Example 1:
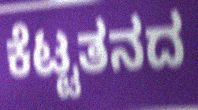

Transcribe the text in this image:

ಕೆಟ್ಟತನದ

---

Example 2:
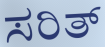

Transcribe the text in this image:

ಸರಿತ್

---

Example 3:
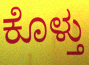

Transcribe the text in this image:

ಕೊಳ್ತು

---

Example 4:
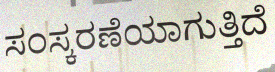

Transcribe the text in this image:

ಸಂಸ್ಕರಣೆಯಾಗುತ್ತಿದೆ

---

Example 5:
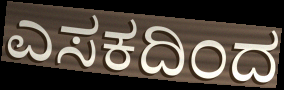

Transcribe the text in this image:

ಎಸಕದಿಂದ